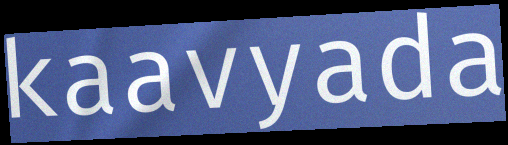
kaavyada